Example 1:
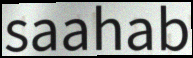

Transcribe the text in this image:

saahab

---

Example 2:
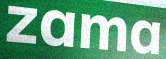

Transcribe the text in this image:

zama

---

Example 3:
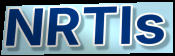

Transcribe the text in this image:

NRTIs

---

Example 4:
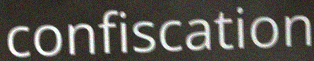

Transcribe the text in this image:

confiscation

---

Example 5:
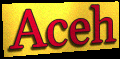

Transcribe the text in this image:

Aceh